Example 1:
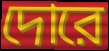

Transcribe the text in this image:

দোরে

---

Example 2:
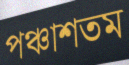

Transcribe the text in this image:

পঞ্চাশতম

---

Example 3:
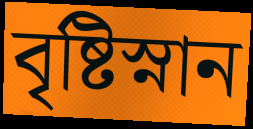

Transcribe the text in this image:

বৃষ্টিস্নান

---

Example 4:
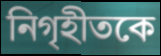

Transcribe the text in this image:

নিগৃহীতকে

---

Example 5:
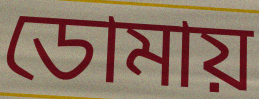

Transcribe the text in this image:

ডোমায়